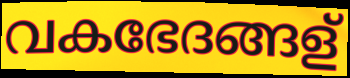
വകഭേദങ്ങള്